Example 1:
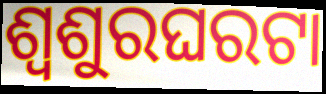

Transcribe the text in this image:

ଶ୍ୱଶୁରଘରଟା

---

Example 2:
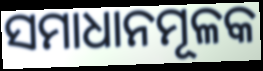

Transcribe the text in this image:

ସମାଧାନମୂଳକ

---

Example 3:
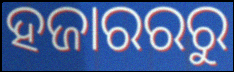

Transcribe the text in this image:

ହଜାରରରୁ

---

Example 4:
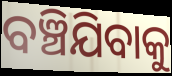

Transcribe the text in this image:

ବଞ୍ଚିଯିବାକୁ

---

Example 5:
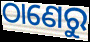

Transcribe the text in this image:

ଠାଣେରୁ